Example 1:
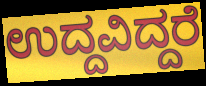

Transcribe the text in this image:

ಉದ್ದವಿದ್ದರೆ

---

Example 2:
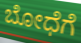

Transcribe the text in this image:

ಬೋಧೆಗೆ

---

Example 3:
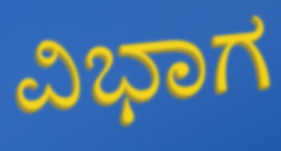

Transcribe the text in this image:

ವಿಭಾಗ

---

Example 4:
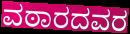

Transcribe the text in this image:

ವಠಾರದವರ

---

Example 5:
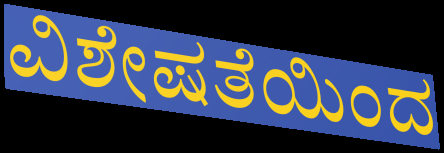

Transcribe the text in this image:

ವಿಶೇಷತೆಯಿಂದ